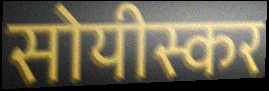
सोयीस्कर